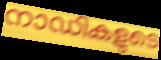
നാഡികളുടെ